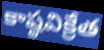
కాష్ఠవిక్రేత